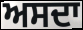
ਅਸਦਾ